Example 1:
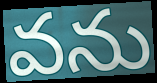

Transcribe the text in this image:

వను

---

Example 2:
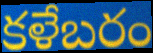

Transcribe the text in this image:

కళేబరం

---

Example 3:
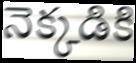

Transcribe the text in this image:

నెక్కడికి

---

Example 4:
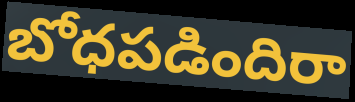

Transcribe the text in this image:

బోధపడిందిరా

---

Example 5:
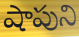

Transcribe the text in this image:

షాపుని